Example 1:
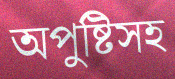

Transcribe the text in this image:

অপুষ্টিসহ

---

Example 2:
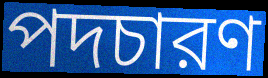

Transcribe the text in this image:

পদচারণ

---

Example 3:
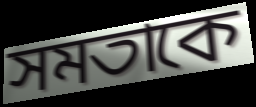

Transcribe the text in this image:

সমতাকে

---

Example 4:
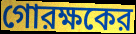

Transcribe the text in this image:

গোরক্ষকের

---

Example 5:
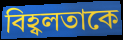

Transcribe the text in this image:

বিহ্বলতাকে